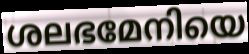
ശലഭമേനിയെ